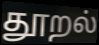
தூறல்